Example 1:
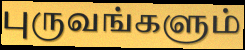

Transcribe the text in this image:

புருவங்களும்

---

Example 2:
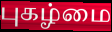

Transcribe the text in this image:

புகழ்மை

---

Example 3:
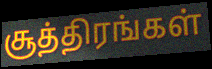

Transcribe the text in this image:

சூத்திரங்கள்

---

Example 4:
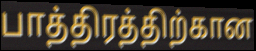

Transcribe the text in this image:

பாத்திரத்திற்கான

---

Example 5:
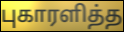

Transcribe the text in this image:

புகாரளித்த